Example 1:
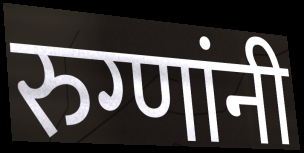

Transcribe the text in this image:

रुग्णांनी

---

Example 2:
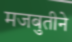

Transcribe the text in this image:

मजबुतीने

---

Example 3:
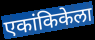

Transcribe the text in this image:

एकांकिकेला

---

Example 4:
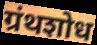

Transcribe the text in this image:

ग्रंथशोध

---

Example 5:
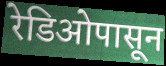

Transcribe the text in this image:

रेडिओपासून